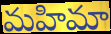
మహిమా